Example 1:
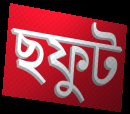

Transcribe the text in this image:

ছফুট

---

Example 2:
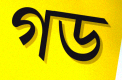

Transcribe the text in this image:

গড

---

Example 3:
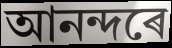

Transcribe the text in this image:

আনন্দৰে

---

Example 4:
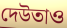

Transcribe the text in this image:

দেউতাও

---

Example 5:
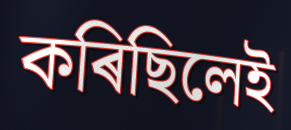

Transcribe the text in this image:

কৰিছিলেই